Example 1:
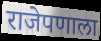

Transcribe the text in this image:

राजेपणाला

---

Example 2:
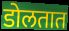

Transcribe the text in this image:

डोलतात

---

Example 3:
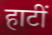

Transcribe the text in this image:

हाटीं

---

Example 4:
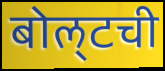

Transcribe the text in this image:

बोल्टची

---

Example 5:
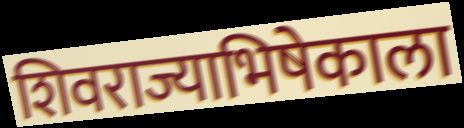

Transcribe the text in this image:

शिवराज्याभिषेकाला